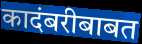
कादंबरीबाबत